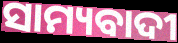
ସାମ୍ୟବାଦୀ